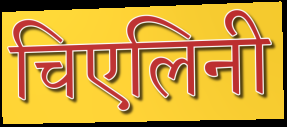
चिएलिनी